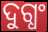
ଦୁଗ୍ଧଂ